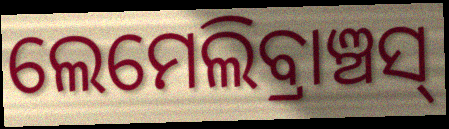
ଲେମେଲିବ୍ରାଞ୍ଚସ୍